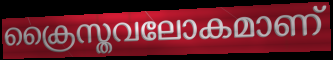
ക്രൈസ്തവലോകമാണ്